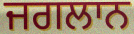
ਜਗਲਾਨ